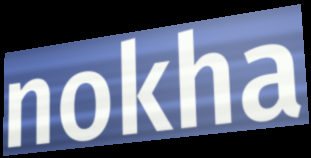
nokha